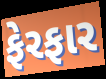
ફેરફાર